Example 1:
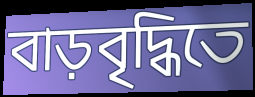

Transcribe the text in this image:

বাড়বৃদ্ধিতে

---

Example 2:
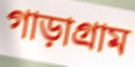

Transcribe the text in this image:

গাড়াগ্রাম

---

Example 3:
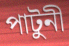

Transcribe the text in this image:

পাটুনী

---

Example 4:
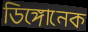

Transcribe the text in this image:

ডিঙ্গোনেক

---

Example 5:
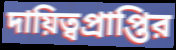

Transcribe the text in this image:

দায়িত্বপ্রাপ্তির